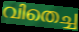
വിതെച്ച